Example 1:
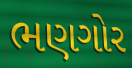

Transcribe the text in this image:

ભણગોર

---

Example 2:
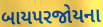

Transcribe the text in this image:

બાયપરજોયના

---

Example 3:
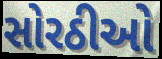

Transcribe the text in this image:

સોરઠીઓ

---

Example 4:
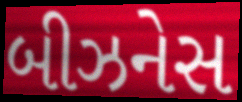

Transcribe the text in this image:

બીઝનેસ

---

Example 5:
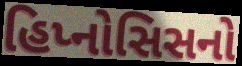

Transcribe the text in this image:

હિપ્નોસિસનો